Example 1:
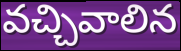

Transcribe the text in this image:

వచ్చివాలిన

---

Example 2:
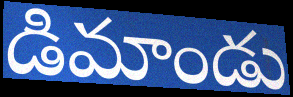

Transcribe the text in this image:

డిమాండు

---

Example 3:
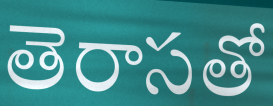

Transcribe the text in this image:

తెరాసతో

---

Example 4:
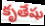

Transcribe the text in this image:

కృతేషు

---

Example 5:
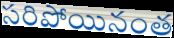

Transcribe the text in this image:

సరిపోయినంత